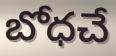
బోధచే